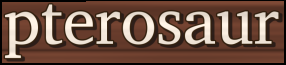
pterosaur